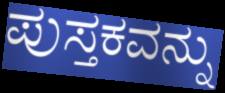
ಪುಸ್ತಕವನ್ನು